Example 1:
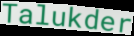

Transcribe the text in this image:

Talukder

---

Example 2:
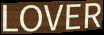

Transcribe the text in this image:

LOVER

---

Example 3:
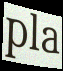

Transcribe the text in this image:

pla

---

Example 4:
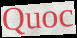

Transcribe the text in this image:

Quoc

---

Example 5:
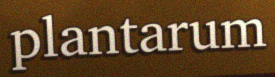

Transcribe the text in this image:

plantarum